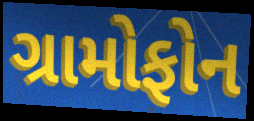
ગ્રામોફોન